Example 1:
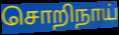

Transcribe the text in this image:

சொறிநாய்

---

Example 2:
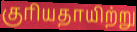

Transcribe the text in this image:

குரியதாயிற்று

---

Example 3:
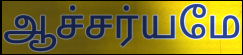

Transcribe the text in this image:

ஆச்சர்யமே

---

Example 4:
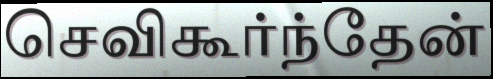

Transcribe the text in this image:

செவிகூர்ந்தேன்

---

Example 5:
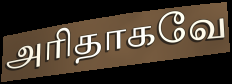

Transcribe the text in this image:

அரிதாகவே